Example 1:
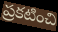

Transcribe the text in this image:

ప్రకటించి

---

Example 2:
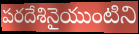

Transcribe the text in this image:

పరదేశినైయుంటిని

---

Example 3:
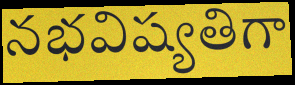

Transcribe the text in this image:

నభవిష్యతిగా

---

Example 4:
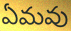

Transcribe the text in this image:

ఏమవు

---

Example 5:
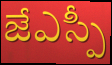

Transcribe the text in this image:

జేఎస్పీ